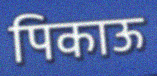
पिकाऊ